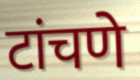
टांचणे